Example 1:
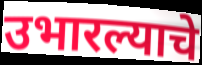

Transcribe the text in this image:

उभारल्याचे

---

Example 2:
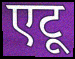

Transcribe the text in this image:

एटू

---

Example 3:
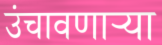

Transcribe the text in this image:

उंचावणाऱ्या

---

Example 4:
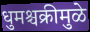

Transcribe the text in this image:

धुमश्चक्रीमुळे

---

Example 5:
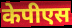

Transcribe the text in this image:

केपीएस